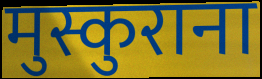
मुस्कुराना